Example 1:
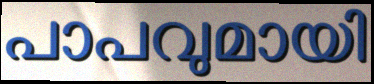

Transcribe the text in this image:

പാപവുമായി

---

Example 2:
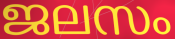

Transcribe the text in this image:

ജലസം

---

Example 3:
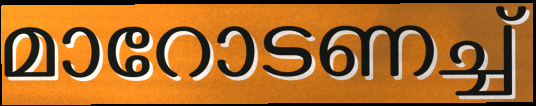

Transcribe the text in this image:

മാറോടണച്ച്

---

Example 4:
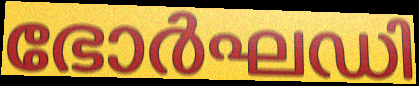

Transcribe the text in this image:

ഭോർഘഡി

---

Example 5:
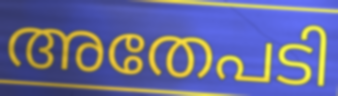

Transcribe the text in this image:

അതേപടി